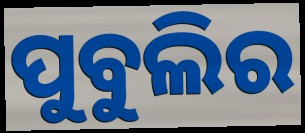
ପୁବୁଲିର